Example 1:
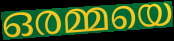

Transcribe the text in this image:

ഒരമ്മയെ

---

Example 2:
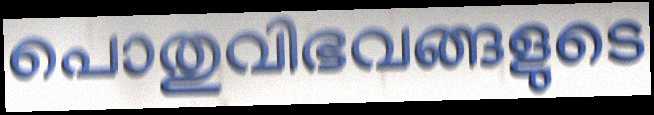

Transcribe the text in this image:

പൊതുവിഭവങ്ങളുടെ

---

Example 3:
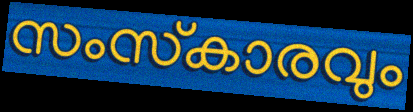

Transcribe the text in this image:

സംസ്‌കാരവും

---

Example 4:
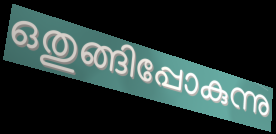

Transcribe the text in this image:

ഒതുങ്ങിപ്പോകുന്നു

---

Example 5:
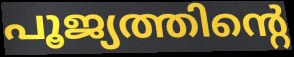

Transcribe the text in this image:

പൂജ്യത്തിന്റെ